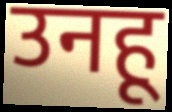
उनहू